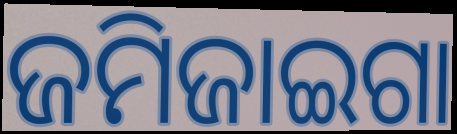
ଜମିଜାଇଗା